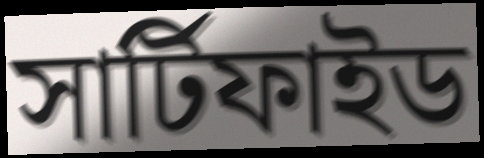
সার্টিফাইড